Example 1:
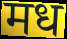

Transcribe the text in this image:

मध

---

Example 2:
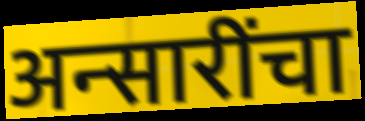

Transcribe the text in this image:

अन्सारींचा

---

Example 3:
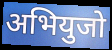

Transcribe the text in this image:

अभियुजो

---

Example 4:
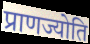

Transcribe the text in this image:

प्राणज्योति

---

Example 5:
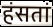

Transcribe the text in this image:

हंसतां